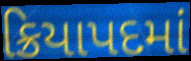
ક્રિયાપદમાં